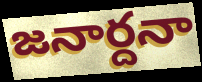
జనార్దనా